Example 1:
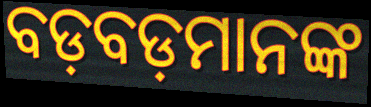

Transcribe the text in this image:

ବଡ଼ବଡ଼ମାନଙ୍କ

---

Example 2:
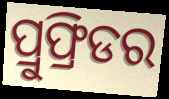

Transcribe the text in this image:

ପ୍ରୁଫ୍ରିଡର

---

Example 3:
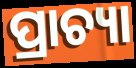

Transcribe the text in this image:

ପ୍ରାଚ୍ୟା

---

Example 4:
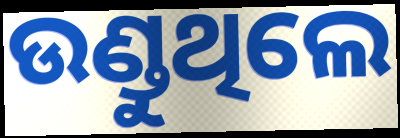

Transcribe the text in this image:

ଉଣ୍ଡୁଥିଲେ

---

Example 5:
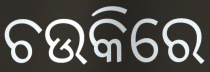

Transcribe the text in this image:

ଚଉକିରେ